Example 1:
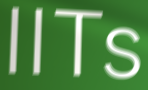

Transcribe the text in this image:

IITs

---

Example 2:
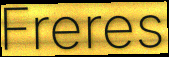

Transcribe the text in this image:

Freres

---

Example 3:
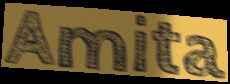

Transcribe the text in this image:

Amita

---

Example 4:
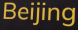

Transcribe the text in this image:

Beijing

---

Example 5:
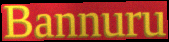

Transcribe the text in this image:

Bannuru